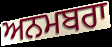
ਅਨਮਬਰਾ